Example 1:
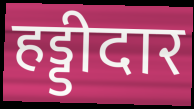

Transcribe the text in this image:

हड्डीदार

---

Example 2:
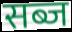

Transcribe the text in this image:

सब्ज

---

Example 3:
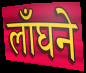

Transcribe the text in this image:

लाँघने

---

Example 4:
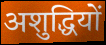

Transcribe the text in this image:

अशुद्धियों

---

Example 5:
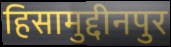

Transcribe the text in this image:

हिसामुद्दीनपुर